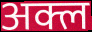
अक्ल